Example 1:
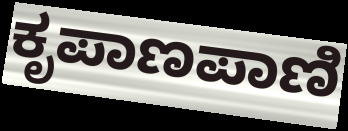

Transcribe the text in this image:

ಕೃಪಾಣಪಾಣಿ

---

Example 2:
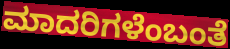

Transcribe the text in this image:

ಮಾದರಿಗಳೆಂಬಂತೆ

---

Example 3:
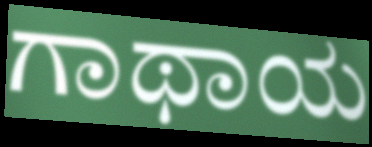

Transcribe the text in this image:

ಗಾಥಾಯ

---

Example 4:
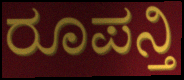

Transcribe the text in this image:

ರೂಪನ್ತಿ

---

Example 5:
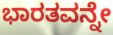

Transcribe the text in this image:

ಭಾರತವನ್ನೇ